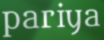
pariya